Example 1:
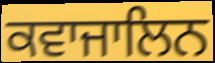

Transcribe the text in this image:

ਕਵਾਜਾਲਿਨ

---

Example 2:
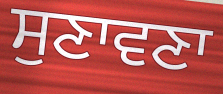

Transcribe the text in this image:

ਸੁਣਾਵਣਾ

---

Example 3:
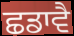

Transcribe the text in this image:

ਛਡਾਵੈ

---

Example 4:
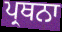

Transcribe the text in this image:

ਪ੍ਰਥਨਾ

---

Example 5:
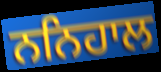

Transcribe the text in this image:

ਨਨਿਹਾਲ